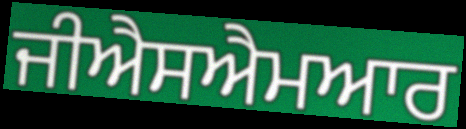
ਜੀਐਸਐਮਆਰ